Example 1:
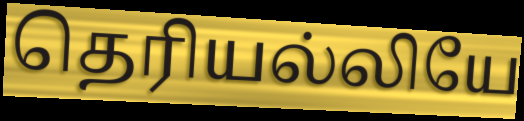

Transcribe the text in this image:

தெரியல்லியே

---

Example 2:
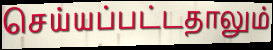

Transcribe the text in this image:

செய்யப்பட்டதாலும்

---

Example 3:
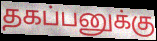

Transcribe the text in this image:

தகப்பனுக்கு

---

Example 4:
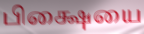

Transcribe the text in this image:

பிக்ஷையை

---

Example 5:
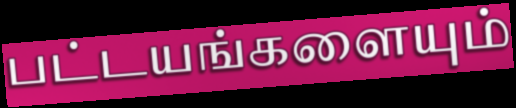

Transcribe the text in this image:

பட்டயங்களையும்